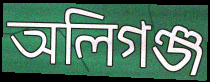
অলিগঞ্জ